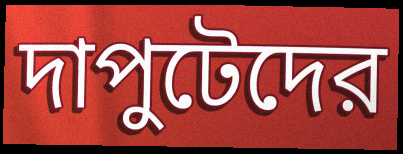
দাপুটেদের